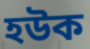
হউক